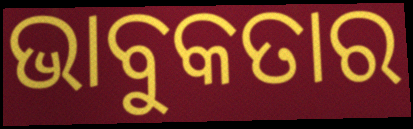
ଭାବୁକତାର